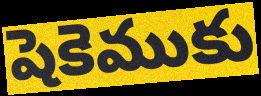
షెకెముకు